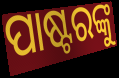
ପାଷ୍ଟରଙ୍କୁ